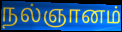
நல்ஞானம்